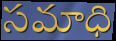
సమాధి